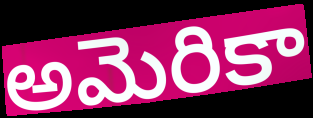
అమెరికా